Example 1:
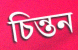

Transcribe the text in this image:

চিন্তন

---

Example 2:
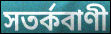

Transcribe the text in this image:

সতৰ্কবাণী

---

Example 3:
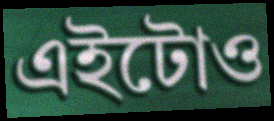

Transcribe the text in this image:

এইটোও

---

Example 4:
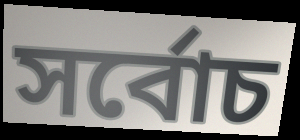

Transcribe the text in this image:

সৰ্বোচ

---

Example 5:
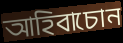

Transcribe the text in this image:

আহিবাচোন